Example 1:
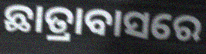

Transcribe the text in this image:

ଛାତ୍ରାବାସରେ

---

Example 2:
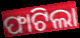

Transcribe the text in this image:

ଫାଟିଲା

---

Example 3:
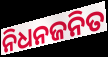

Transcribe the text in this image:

ନିଧନଜନିତ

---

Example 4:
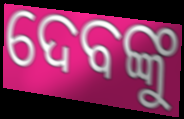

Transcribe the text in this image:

ଦେବଙ୍କୁ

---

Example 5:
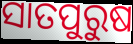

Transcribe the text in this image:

ସାତପୁରୁଷ